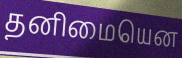
தனிமையென